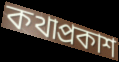
কথাপ্রকাশ